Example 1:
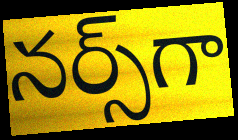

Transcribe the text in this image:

నర్స్‌గా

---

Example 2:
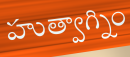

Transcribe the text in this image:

హుత్వాగ్నిం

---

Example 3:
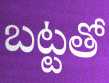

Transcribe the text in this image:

బట్టతో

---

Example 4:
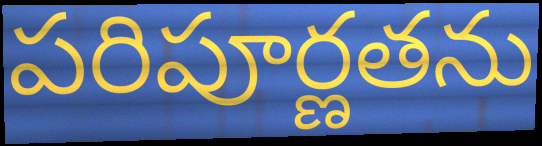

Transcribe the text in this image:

పరిపూర్ణతను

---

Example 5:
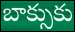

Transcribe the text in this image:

బాక్సుకు